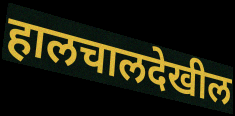
हालचालदेखील